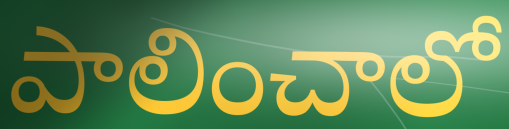
పాలించాలో